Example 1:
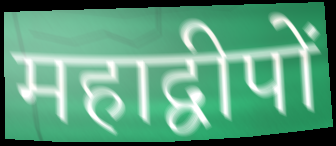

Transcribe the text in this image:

महाद्वीपों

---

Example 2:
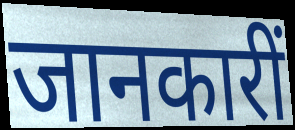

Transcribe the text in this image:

जानकारीं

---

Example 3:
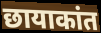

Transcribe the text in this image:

छायाकांत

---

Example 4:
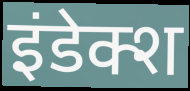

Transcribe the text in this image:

इंडेक्श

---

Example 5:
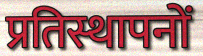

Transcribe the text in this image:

प्रतिस्थापनों